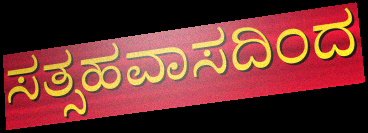
ಸತ್ಸಹವಾಸದಿಂದ